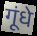
गूंधे